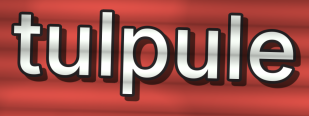
tulpule